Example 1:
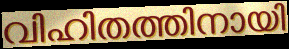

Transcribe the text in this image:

വിഹിതത്തിനായി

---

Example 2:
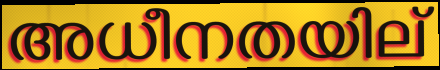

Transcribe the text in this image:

അധീനതയില്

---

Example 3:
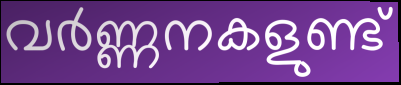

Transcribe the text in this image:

വർണ്ണനകളുണ്ട്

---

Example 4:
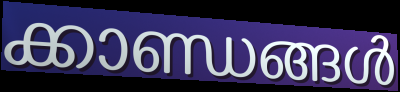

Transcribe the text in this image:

ക്കാണ്ഡങ്ങൾ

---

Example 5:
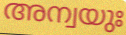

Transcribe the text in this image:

അന്വയുഃ